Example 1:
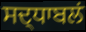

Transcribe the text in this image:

ਸਦ੍ਧਾਬਲਂ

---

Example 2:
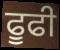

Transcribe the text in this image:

ਫੂਫੀ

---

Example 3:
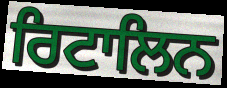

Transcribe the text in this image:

ਰਿਟਾਲਿਨ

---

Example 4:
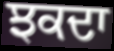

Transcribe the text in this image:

ਝਕਦਾ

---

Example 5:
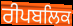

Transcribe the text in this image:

ਰੀਪਬਲਿਕ